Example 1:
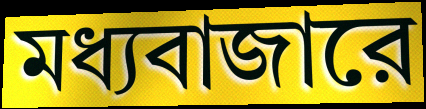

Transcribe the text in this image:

মধ্যবাজারে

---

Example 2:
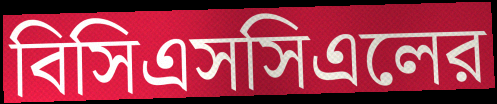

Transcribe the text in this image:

বিসিএসসিএলের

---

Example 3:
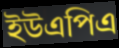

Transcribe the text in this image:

ইউএপিএ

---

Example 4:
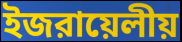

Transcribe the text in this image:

ইজরায়েলীয়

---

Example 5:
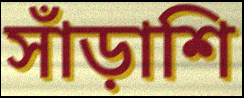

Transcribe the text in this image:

সাঁড়াশি